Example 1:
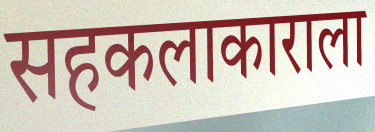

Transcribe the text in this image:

सहकलाकाराला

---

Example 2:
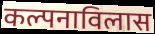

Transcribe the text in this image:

कल्पनाविलास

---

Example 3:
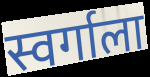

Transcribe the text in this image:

स्वर्गाला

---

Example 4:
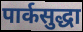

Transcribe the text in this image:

पार्कसुद्धा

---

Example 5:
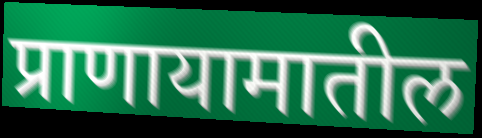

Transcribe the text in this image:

प्राणायामातील